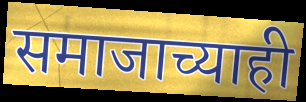
समाजाच्याही